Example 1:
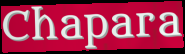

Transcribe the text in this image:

Chapara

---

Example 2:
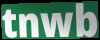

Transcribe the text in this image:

tnwb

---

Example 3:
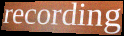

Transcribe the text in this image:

recording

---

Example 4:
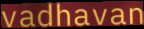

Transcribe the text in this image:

vadhavan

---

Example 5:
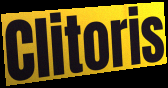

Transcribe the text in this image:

Clitoris